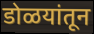
डोळयांतून